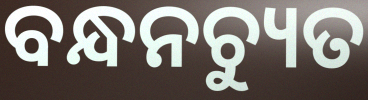
ବନ୍ଧନଚ୍ୟୁତ